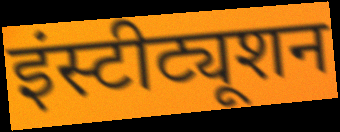
इंस्‍टीट्यूशन